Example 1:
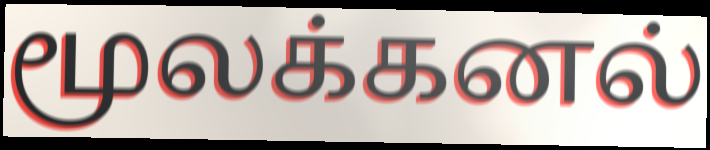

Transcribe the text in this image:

மூலக்கனல்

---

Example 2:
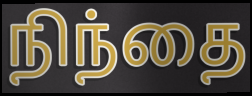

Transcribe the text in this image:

நிந்தை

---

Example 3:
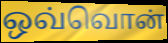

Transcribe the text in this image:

ஒவ்வொன்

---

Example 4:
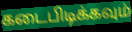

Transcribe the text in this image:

கடைபிடிக்கவும்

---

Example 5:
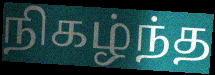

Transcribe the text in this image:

நிகழ்ந்த